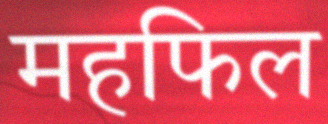
महफिल